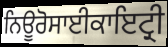
ਨਿਊਰੋਸਾਈਕਾਇਟ੍ਰੀ